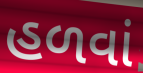
હળવાં